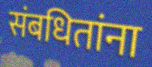
संबधितांना